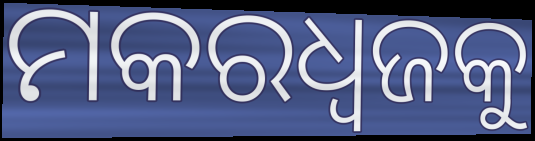
ମକରଧ୍ୱଜକୁ